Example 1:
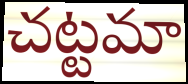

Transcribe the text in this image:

చట్టమా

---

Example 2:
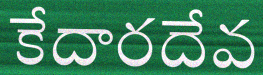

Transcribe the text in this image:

కేదారదేవ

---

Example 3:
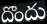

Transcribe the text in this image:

దొందు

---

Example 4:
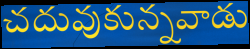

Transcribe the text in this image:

చదువుకున్నవాడు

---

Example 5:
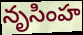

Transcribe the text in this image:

నృసింహ